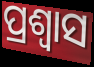
ପ୍ରଶ୍ଵାସ